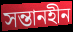
সন্তানহীন